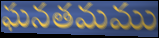
ఘనతమము